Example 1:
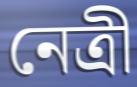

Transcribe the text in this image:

নেত্ৰী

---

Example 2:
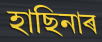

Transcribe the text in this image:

হাছিনাৰ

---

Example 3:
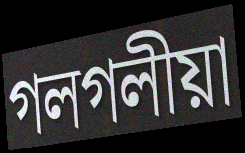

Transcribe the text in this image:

গলগলীয়া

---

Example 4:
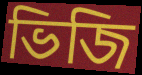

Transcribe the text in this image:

ভিজি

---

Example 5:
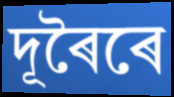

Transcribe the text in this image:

দূৰৈৰে